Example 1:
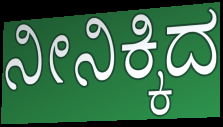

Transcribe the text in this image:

ನೀನಿಕ್ಕಿದ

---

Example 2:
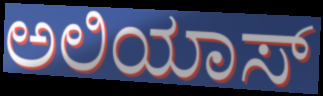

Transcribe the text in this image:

ಅಲಿಯಾಸ್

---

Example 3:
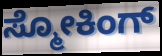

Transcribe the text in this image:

ಸ್ಮೋಕಿಂಗ್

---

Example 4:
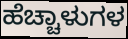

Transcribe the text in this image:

ಹೆಚ್ಚಾಳುಗಳ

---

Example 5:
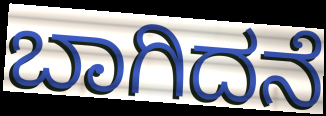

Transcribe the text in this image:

ಬಾಗಿದನೆ